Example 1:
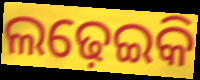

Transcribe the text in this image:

ଲଢ଼େଇକି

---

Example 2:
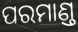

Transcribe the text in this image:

ପରମାଣ୍ଡ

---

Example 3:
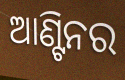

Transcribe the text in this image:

ଆଣ୍ଟିନର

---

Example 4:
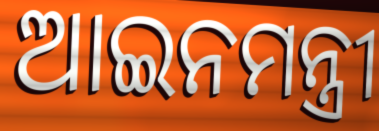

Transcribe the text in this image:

ଆଇନମନ୍ତ୍ରୀ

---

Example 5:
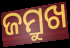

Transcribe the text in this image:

ଜମ୍ରୁଖ